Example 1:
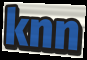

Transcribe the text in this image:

knn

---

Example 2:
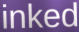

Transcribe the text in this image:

inked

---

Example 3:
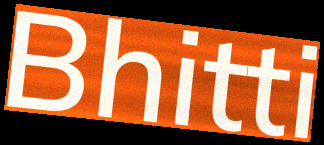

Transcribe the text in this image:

Bhitti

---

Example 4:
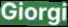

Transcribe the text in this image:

Giorgi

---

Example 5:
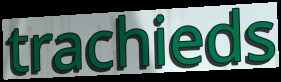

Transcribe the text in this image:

trachieds